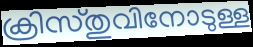
ക്രിസ്തുവിനോടുള്ള